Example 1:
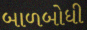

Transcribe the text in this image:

બાળબોધી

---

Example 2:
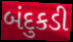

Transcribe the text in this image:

બંદુકડી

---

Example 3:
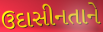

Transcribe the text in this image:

ઉદાસીનતાને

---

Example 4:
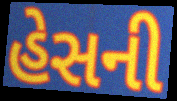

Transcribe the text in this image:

હેસની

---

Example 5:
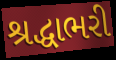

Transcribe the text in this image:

શ્રદ્ધાભરી